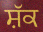
ਸ਼ੱਕ